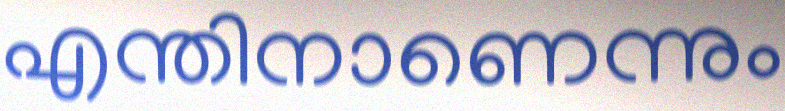
എന്തിനാണെന്നും